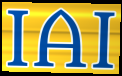
IAI